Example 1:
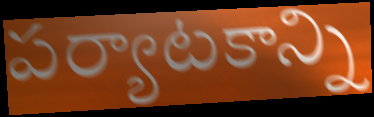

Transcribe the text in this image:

పర్యాటకాన్ని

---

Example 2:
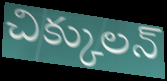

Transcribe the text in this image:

చిక్కులన్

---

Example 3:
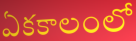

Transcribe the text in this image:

ఏకకాలంలో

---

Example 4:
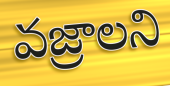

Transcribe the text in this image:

వజ్రాలని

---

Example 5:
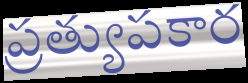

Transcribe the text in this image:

ప్రత్యుపకార